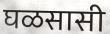
घळसासी